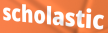
scholastic